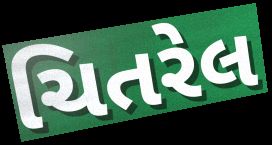
ચિતરેલ